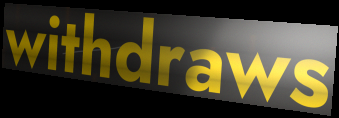
withdraws